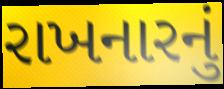
રાખનારનું